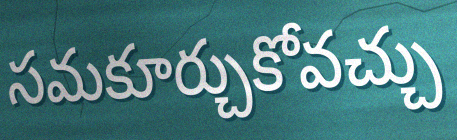
సమకూర్చుకోవచ్చు